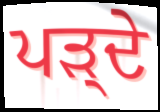
ਪੜ੍ਦੇ